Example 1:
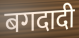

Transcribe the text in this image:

बगदादी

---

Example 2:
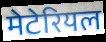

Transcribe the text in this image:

मेटेरियल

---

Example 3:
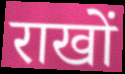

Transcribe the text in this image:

राखों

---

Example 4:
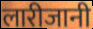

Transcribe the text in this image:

लारीजानी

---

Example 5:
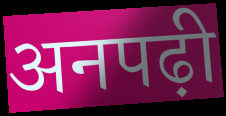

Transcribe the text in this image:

अनपढ़ी